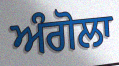
ਅੰਗੋਲਾ